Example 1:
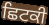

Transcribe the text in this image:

ਛਿਟਕੀ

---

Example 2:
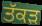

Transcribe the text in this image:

ਤੱਕੜ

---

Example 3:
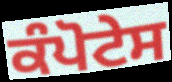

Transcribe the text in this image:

ਕੰਪੋਟੇਸ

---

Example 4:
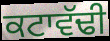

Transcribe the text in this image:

ਕਟਾਵੱਢੀ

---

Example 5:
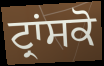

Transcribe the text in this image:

ਟ੍ਰਾਂਸਕੋ